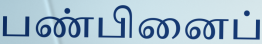
பண்பினைப்